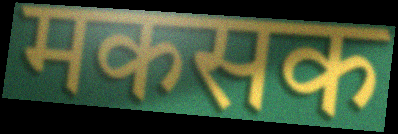
मकसक